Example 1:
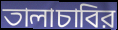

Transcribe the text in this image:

তালাচাবির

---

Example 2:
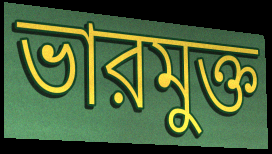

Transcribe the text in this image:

ভারমুক্ত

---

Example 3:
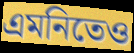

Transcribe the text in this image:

এমনিতেও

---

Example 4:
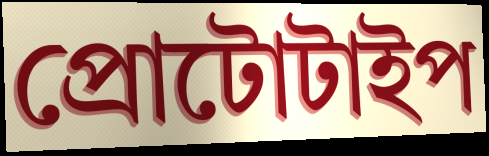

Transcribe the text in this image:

প্রোটোটাইপ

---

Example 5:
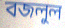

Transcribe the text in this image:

বজলুল